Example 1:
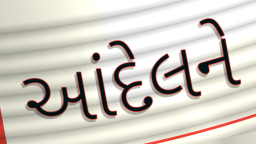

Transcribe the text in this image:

આંદેલને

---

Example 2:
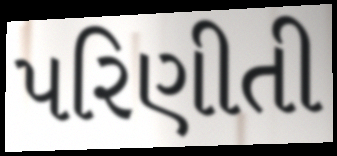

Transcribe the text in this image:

પરિણીતી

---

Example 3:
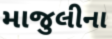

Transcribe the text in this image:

માજુલીના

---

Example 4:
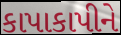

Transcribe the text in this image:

કાપાકાપીને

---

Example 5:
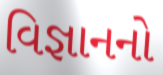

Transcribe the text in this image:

વિજ્ઞાનનો